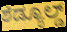
ಶೆಡ್ಯೂಲ್ಡ್